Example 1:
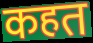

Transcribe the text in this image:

कहत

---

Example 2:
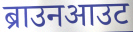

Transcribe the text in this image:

ब्राउनआउट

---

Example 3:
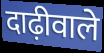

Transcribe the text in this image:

दाढ़ीवाले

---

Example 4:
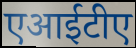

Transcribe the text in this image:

एआईटीए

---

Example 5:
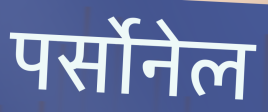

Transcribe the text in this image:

पर्सोनेल